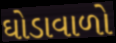
ઘોડાવાળો